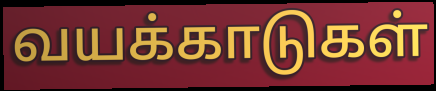
வயக்காடுகள்